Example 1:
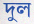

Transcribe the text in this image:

দুল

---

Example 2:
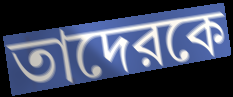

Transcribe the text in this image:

তাদেরকে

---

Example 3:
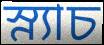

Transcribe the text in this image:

স্ন্যাচ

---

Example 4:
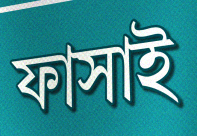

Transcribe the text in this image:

ফাসাই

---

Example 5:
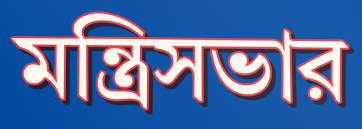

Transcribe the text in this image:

মন্ত্রিসভার